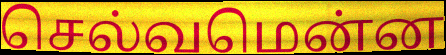
செல்வமென்ன